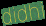
didhi